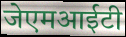
जेएमआईटी